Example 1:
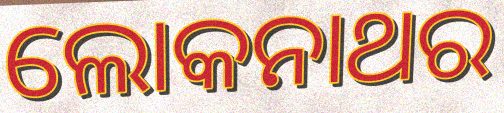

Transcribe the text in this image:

ଲୋକନାଥର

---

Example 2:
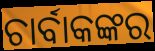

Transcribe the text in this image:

ଚାର୍ବାକଙ୍କର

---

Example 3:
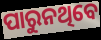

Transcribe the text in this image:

ପାରୁନଥିବେ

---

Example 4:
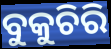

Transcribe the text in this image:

ବୁକୁଚିରି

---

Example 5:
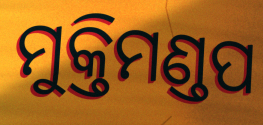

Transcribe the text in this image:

ମୁକ୍ତିମଣ୍ଡପ